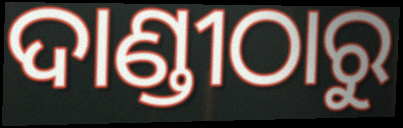
ଦାଣ୍ଡୀଠାରୁ